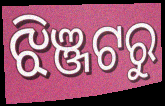
ଝିଞ୍ଜଟରୁ